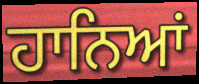
ਹਾਨਿਆਂ